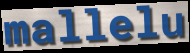
mallelu